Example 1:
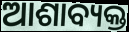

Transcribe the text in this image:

ଆଶାବ୍ୟକ୍ତ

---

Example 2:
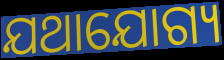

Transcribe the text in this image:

ଯଥାଯୋଗ୍ୟ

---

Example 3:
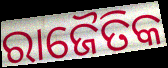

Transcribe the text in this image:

ରାଜୈତିକ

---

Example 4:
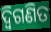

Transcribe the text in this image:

ଦ୍ୱିଗଣିତ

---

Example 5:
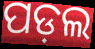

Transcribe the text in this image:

ପଡ଼ଲ